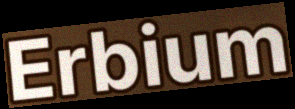
Erbium